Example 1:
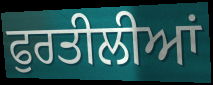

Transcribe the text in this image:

ਫੁਰਤੀਲੀਆਂ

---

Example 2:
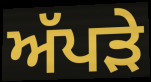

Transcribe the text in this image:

ਅੱਪੜੇ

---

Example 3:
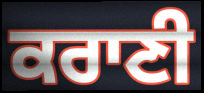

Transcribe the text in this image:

ਕਰਾਣੀ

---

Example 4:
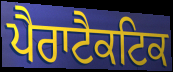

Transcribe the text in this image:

ਪੈਰਾਟੈਕਟਿਕ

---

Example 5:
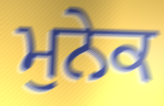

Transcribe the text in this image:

ਮੁਨੇਕ